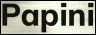
Papini